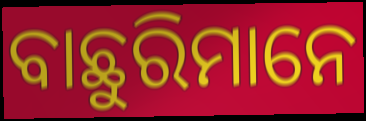
ବାଛୁରିମାନେ